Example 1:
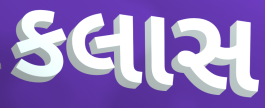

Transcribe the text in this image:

કલાસ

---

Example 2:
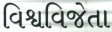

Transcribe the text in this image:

વિશ્વવિજેતા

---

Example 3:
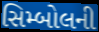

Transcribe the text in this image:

સિમ્બોલની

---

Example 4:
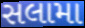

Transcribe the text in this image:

સલામા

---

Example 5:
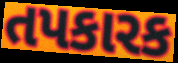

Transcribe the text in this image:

તપકારક